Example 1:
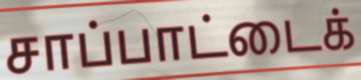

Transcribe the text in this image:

சாப்பாட்டைக்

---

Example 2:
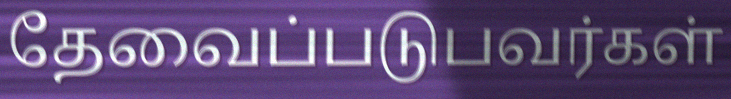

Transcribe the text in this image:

தேவைப்படுபவர்கள்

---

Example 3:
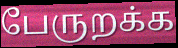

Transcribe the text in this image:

பேருறக்க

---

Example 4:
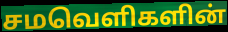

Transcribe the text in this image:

சமவெளிகளின்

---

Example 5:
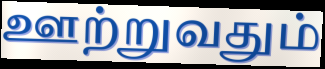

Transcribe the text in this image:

ஊற்றுவதும்